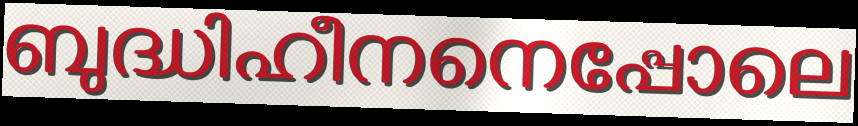
ബുദ്ധിഹീനനെപ്പോലെ